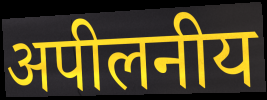
अपीलनीय